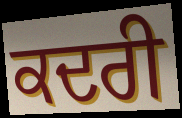
ਕਦਰੀ